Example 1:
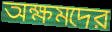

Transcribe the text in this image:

অক্ষমদের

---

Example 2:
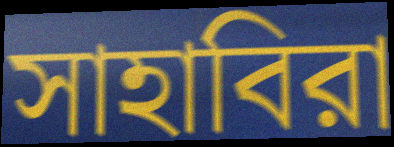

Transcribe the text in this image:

সাহাবিরা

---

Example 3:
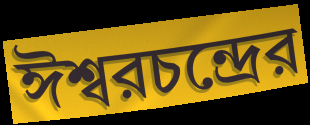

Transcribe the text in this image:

ঈশ্বরচন্দ্রের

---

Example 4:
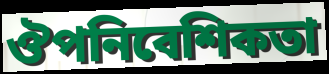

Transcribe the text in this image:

ঔপনিবেশিকতা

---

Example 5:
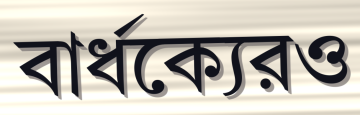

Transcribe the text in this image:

বার্ধক্যেরও